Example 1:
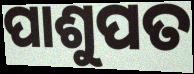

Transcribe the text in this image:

ପାଶୁପତ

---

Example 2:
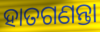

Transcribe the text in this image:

ହାତଗଣନ୍ତା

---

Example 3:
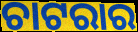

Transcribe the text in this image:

ଚାଟରାର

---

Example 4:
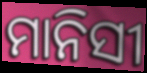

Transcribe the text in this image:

ମାନିସୀ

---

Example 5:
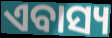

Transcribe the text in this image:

ଏବାସ୍ୟ